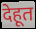
देहूत